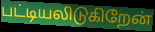
பட்டியலிடுகிறேன்